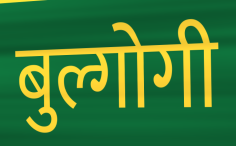
बुल्गोगी